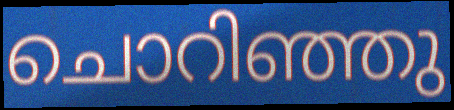
ചൊറിഞ്ഞു